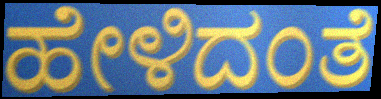
ಹೇಳಿದಂತೆ